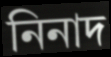
নিনাদ